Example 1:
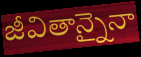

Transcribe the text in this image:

జీవితాన్నైనా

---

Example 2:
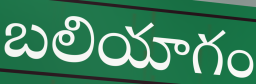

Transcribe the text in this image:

బలియాగం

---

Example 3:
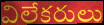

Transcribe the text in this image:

విలేకరులు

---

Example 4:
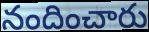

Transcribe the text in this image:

నందించారు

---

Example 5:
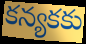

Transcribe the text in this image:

కన్యకకు